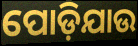
ପୋଡ଼ିଯାଉ